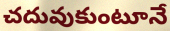
చదువుకుంటూనే